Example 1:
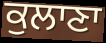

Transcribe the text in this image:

ਕੁਲਾਣਾ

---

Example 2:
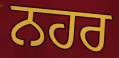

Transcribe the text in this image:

ਨਹਰ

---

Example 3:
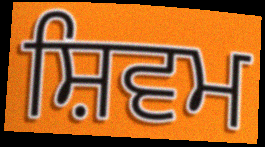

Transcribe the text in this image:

ਸ਼ਿਵਮ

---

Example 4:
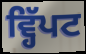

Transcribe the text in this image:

ਵ੍ਹਿੱਪਟ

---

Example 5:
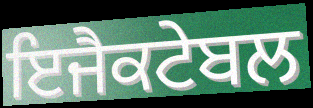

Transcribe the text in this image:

ਇਜੈਕਟੇਬਲ